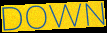
DOWN